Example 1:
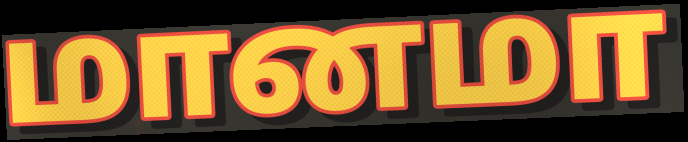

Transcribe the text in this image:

மானமா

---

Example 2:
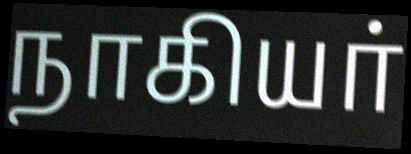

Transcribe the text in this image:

நாகியர்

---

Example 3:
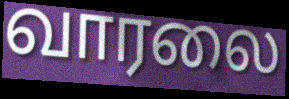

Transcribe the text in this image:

வாரலை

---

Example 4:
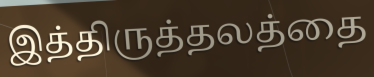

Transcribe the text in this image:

இத்திருத்தலத்தை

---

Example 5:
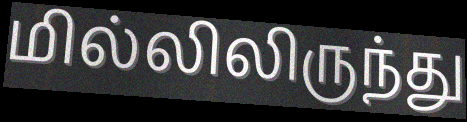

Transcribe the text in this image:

மில்லிலிருந்து